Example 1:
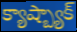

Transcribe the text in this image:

క్యాష్బ్యాక్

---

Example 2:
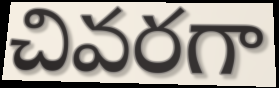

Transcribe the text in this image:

చివరగా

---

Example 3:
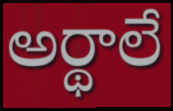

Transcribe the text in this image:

అర్థాలే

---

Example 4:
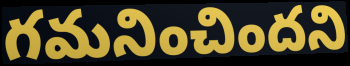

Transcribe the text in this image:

గమనించిందని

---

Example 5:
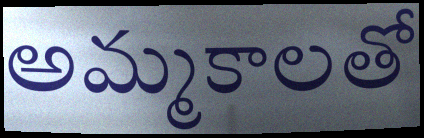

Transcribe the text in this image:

అమ్మకాలతో